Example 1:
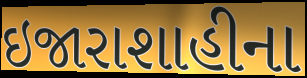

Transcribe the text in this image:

ઇજારાશાહીના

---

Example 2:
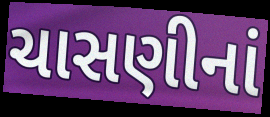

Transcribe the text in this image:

ચાસણીનાં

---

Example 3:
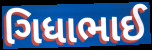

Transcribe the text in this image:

ગિધાભાઈ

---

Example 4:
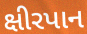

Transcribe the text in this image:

ક્ષીરપાન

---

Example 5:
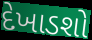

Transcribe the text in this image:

દેખાડશો